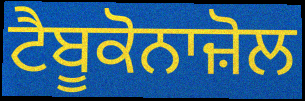
ਟੈਬੂਕੋਨਾਜ਼ੋਲ